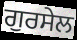
ਗੁਰਸੇਲ